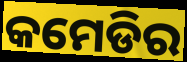
କମେଡିର